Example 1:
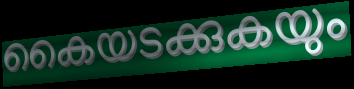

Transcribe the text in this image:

കൈയടക്കുകയും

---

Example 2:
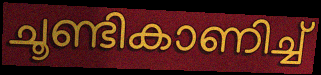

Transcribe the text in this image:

ചൂണ്ടികാണിച്ച്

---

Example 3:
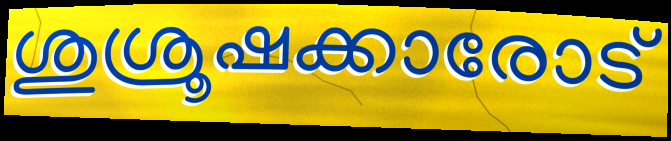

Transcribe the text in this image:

ശുശ്രൂഷക്കാരോട്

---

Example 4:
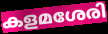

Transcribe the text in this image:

കളമശേരി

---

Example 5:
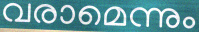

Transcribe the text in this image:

വരാമെന്നും